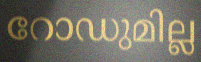
റോഡുമില്ല